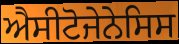
ਐਸੀਟੋਜੇਨੇਸਿਸ